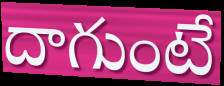
దాగుంటే